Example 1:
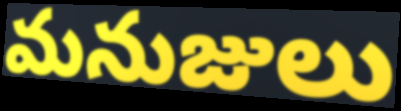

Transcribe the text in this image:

మనుజులు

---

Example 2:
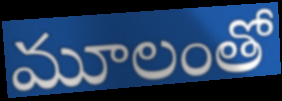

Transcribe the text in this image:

మూలంతో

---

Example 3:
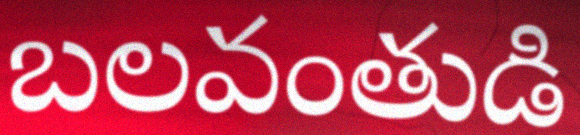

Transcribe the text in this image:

బలవంతుడి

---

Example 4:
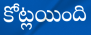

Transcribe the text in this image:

కోట్లయింది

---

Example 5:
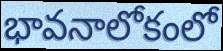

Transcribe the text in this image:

భావనాలోకంలో